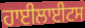
ਹਾਈਲਾਈਟਸ